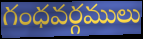
గంధవర్గములు